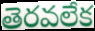
తెరవలేక